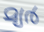
മ്യർ